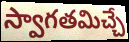
స్వాగతమిచ్చే